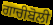
ਗਾਚੀਬੋਲੀ